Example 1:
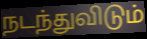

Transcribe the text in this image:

நடந்துவிடும்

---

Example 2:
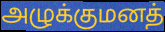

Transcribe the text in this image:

அழுக்குமனத்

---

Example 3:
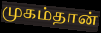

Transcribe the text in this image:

முகம்தான்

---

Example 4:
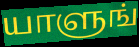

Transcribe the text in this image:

யாளுங்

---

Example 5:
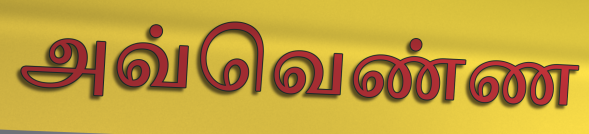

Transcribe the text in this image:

அவ்வெண்ண